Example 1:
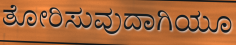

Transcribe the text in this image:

ತೋರಿಸುವುದಾಗಿಯೂ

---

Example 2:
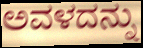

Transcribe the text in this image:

ಅವಳದನ್ನು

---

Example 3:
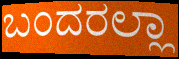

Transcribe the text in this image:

ಬಂದರಲ್ಲಾ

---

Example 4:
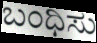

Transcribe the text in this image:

ಬಂಧಿಸು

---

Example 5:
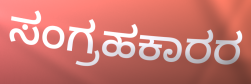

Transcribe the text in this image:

ಸಂಗ್ರಹಕಾರರ